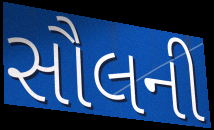
સૌલની